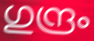
ഗുന്ദ്രം